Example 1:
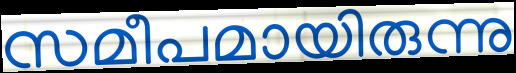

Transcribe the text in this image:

സമീപമായിരുന്നു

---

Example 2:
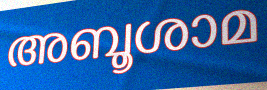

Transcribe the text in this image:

അബൂശാമ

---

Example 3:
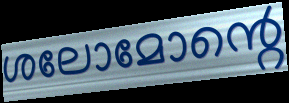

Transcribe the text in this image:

ശലോമോന്റെ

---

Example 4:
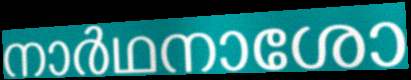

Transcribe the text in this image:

നാർഥനാശോ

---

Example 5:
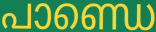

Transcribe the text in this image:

പാണ്ഡെ